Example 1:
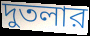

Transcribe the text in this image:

দুতলার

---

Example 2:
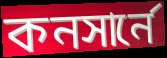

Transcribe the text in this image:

কনসার্নে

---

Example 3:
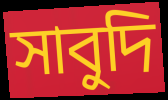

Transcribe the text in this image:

সাবুদি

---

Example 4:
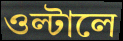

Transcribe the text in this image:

ওল্টালে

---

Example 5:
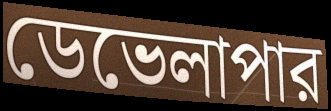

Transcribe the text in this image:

ডেভেলাপার